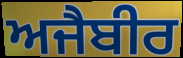
ਅਜੈਬੀਰ